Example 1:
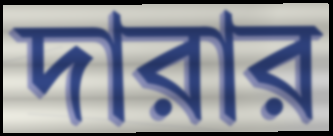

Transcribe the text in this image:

দারার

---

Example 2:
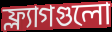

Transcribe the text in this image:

ফ্ল্যাগগুলো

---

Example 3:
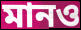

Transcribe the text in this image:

মানও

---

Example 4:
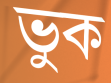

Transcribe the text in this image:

ভুক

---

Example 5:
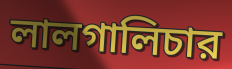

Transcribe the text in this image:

লালগালিচার